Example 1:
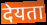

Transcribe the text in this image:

देयता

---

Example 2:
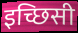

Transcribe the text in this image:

इच्छिसी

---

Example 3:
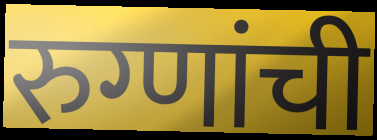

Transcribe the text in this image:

रुग्णांची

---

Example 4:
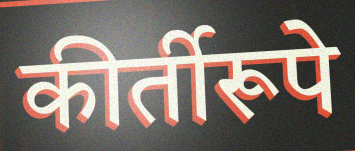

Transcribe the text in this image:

कीर्तीरूपे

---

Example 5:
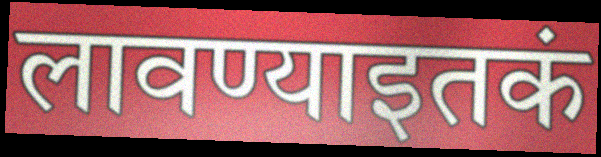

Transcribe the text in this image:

लावण्याइतकं